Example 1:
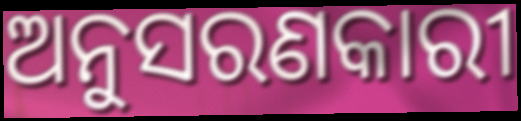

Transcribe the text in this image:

ଅନୁସରଣକାରୀ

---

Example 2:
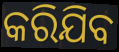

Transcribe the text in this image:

କରିଯିବ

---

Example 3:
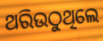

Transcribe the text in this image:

ଥରିଉଠୁଥିଲେ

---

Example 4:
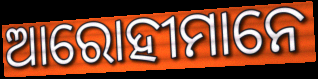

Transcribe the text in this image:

ଆରୋହୀମାନେ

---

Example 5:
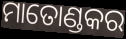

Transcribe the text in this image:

ମାତୋଣ୍ଡକର